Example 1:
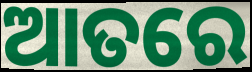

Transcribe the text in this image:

ଆତରେ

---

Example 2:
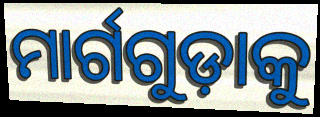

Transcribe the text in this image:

ମାର୍ଗଗୁଡ଼ାକୁ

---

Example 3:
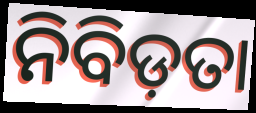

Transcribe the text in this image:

ନିବିଡ଼ତା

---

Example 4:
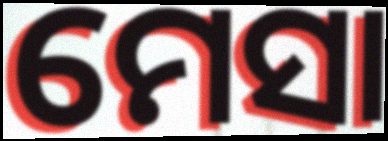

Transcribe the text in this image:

ମେସା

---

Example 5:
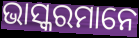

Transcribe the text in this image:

ଭାସ୍କରମାନେ